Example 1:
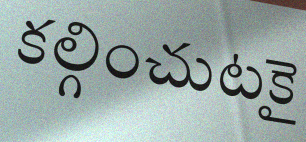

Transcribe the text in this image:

కల్గించుటకై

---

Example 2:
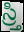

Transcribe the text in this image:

స్ర్తి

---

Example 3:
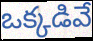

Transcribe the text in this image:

ఒక్కడివే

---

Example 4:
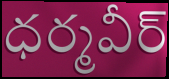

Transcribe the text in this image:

ధర్మవీర్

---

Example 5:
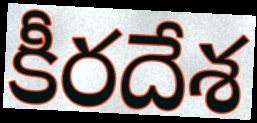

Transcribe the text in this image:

కీరదేశ